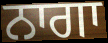
ਨਾਗਾ